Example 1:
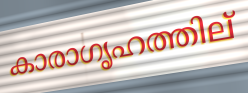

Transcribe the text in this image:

കാരാഗൃഹത്തില്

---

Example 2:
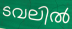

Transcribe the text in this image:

ടവലിൽ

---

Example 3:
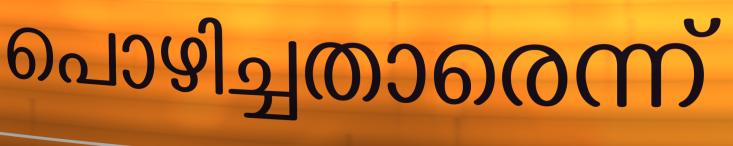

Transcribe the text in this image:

പൊഴിച്ചതാരെന്ന്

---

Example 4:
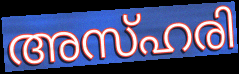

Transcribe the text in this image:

അസ്ഹരി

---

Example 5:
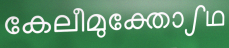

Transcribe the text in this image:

കേലീമുക്തോഽഥ